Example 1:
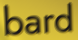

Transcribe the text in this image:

bard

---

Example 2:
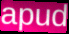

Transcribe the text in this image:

apud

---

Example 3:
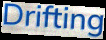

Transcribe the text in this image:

Drifting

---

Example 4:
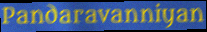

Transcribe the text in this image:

Pandaravanniyan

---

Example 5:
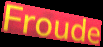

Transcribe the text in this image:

Froude